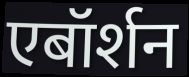
एबॉर्शन